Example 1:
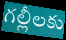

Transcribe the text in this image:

గల్లీలకు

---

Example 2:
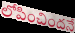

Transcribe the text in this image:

లోపించిందనే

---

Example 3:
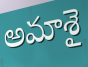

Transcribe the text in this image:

అమాశై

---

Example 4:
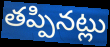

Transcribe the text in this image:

తప్పినట్లు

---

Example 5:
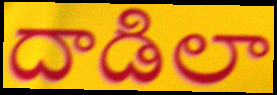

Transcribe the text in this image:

దాడిలా